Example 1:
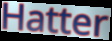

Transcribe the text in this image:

Hatter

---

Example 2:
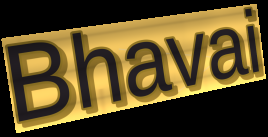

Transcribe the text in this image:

Bhavai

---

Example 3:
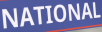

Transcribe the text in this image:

NATIONAL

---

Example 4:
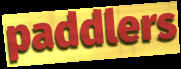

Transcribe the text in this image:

paddlers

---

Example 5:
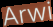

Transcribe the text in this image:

Arwi